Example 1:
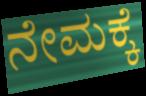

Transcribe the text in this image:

ನೇಮಕ್ಕೆ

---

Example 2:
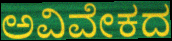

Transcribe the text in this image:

ಅವಿವೇಕದ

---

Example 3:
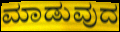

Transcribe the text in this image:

ಮಾಡುವುದ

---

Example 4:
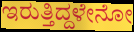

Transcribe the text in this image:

ಇರುತ್ತಿದ್ದಳೇನೋ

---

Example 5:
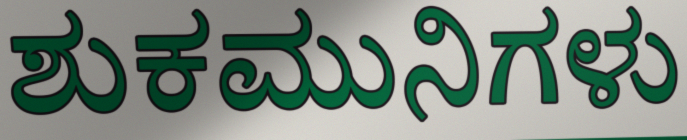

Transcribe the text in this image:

ಶುಕಮುನಿಗಳು